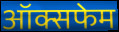
ऑक्सफेम